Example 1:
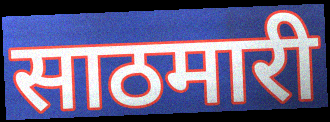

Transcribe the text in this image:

साठमारी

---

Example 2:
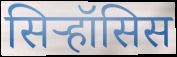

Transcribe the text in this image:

सिऱ्हॉसिस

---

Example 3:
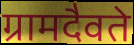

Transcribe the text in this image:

ग्रामदैवते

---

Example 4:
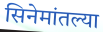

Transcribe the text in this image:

सिनेमांतल्या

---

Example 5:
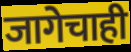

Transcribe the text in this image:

जागेचाही